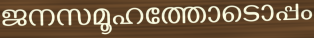
ജനസമൂഹത്തോടൊപ്പം